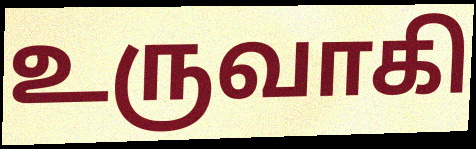
உருவாகி